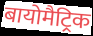
बायोमैट्रिक